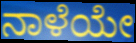
ನಾಳೆಯೇ